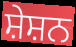
ਸ਼ੇਸ਼ਨ